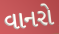
વાનરો